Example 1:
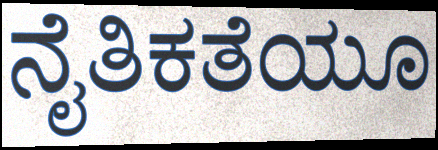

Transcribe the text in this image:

ನೈತಿಕತೆಯೂ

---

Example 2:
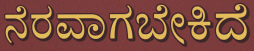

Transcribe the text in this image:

ನೆರವಾಗಬೇಕಿದೆ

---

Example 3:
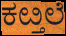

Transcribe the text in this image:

ಕೞ್ತಲೆ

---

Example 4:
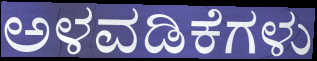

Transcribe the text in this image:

ಅಳವಡಿಕೆಗಳು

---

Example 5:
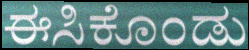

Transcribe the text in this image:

ಈಸಿಕೊಂಡು